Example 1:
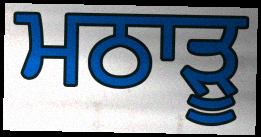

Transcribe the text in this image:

ਮਠਾੜੂ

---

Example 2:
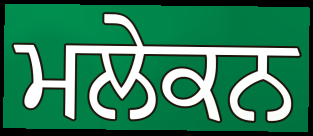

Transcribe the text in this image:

ਮਲੇਕਨ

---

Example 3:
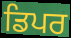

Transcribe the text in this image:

ਡਿਪਰ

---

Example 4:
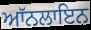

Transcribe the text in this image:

ਆੱਨਲਾਇਨ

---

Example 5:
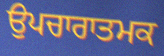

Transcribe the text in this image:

ਉਪਚਾਰਾਤਮਕ